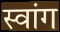
स्‍वांग